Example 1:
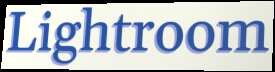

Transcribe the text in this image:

Lightroom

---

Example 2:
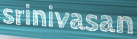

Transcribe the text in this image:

srinivasan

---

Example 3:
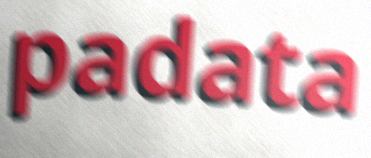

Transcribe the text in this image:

padata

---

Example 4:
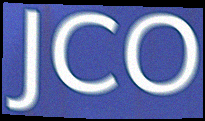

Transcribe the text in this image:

JCO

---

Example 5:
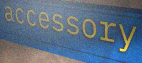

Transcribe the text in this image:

accessory